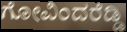
ಗೋವಿಂದರೆಡ್ಡಿ